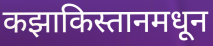
कझाकिस्तानमधून